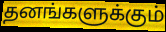
தனங்களுக்கும்